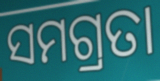
ସମଗ୍ରତା